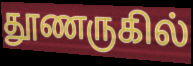
தூணருகில்